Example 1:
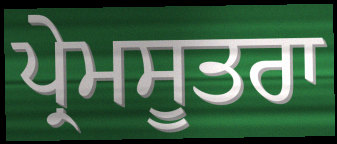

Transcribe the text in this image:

ਪ੍ਰੇਮਸੂਤਰਾ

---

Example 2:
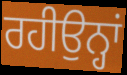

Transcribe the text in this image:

ਰਹੀਉਨ੍ਹਾਂ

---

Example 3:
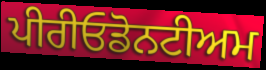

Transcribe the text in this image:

ਪੀਰੀਓਡੋਨਟੀਅਮ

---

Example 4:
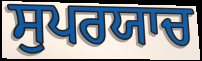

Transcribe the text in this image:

ਸੁਪਰਯਾਚ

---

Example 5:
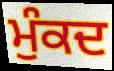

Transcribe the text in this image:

ਮੁੰਕਦ